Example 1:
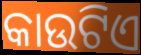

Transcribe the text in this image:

କାଉଟିଏ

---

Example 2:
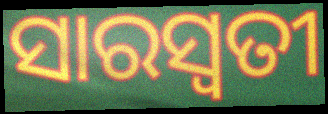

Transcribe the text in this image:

ସାରସ୍ୱତୀ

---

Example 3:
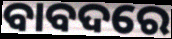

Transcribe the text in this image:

ବାବଦରେ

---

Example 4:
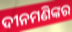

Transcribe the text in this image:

ଦୀନମଣିଙ୍କର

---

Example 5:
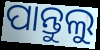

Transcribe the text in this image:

ପାନ୍ତୁଲୁ